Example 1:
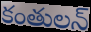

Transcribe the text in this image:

కంతులన్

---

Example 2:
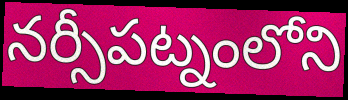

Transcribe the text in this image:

నర్సీపట్నంలోని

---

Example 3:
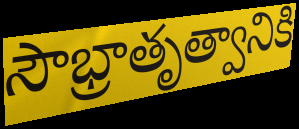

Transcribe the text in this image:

సౌభ్రాతృత్వానికి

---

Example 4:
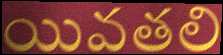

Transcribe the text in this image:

యివతలి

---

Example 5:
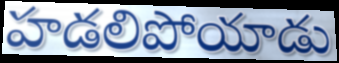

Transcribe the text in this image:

హడలిపోయాడు